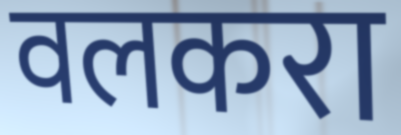
वलकरा